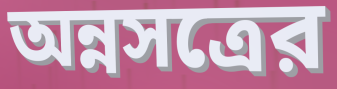
অন্নসত্রের